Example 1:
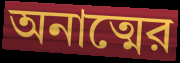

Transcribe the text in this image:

অনাত্মের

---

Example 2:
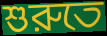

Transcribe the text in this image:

শুরুতে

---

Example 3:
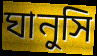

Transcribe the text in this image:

ঘানুসি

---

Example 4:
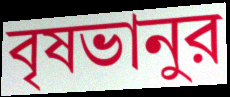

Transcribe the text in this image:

বৃষভানুর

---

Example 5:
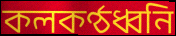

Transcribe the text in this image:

কলকণ্ঠধ্বনি